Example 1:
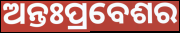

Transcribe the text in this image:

ଅନ୍ତଃପ୍ରବେଶର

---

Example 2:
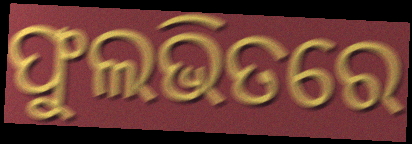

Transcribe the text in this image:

ଫୁଲଭିତରେ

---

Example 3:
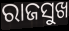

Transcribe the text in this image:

ରାଜସୁଖ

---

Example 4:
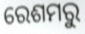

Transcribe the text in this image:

ରେଶମରୁ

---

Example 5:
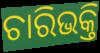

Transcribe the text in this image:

ଚାରିଭକ୍ତି